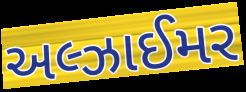
અલ્ઝાઈમર